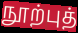
நூற்புத்